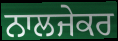
ਨਾਲਜੇਕਰ